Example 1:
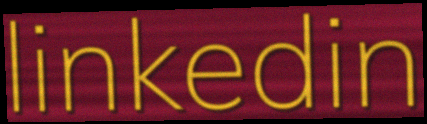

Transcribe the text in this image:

linkedin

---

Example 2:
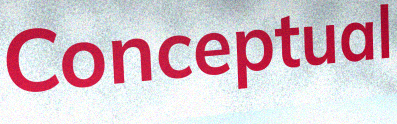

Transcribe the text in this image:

Conceptual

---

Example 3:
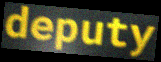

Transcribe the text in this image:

deputy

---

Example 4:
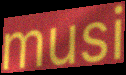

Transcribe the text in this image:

musi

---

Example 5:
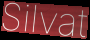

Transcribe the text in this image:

Silvat